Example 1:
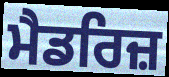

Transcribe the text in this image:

ਮੈਡਰਿਜ਼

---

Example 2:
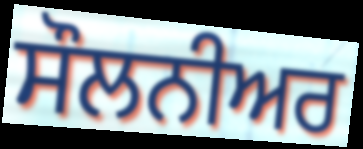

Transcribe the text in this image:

ਸੌਲਨੀਅਰ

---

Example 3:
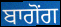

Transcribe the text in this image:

ਬਾਗੋਂਗ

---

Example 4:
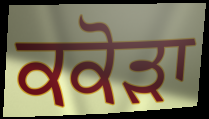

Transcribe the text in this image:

ਕਕੋੜਾ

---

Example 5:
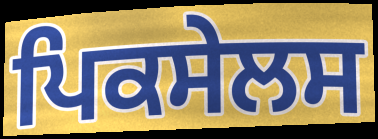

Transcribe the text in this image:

ਪਿਕਸੇਲਸ